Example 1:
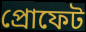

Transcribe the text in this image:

প্রোফেট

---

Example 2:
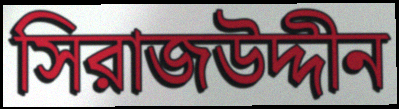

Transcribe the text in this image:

সিরাজউদ্দীন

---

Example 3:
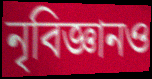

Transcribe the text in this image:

নৃবিজ্ঞানও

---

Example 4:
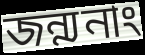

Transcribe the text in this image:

জন্মনাং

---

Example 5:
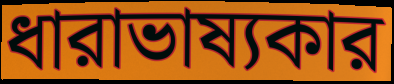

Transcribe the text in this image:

ধারাভাষ্যকার